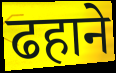
ढहाने